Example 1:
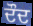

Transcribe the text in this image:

ਦੌਦ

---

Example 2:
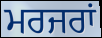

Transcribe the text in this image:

ਮਰਜਰਾਂ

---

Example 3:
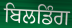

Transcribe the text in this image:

ਬਿਲਡਿੰਗ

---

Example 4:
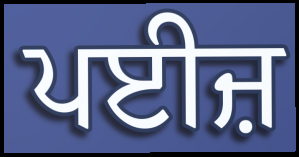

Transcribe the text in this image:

ਪਈਜ਼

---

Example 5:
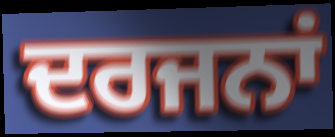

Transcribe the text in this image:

ਦਰਜਨਾਂ